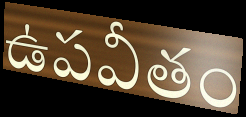
ఉపవీతం